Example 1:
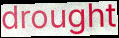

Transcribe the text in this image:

drought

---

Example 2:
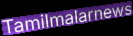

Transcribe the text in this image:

Tamilmalarnews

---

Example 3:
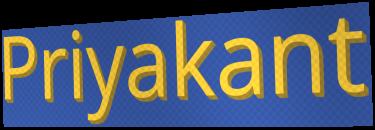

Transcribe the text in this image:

Priyakant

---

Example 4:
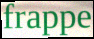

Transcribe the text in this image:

frappe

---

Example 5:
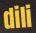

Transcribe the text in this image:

dili